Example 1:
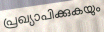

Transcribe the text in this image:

പ്രഖ്യാപിക്കുകയും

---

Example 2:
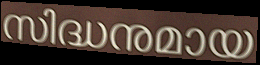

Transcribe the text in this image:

സിദ്ധനുമായ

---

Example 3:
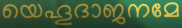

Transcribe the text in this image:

യെഹൂദാജനമേ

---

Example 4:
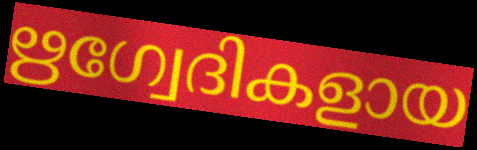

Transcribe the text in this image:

ഋഗ്വേദികളായ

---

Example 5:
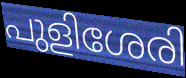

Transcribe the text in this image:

പുളിശേരി